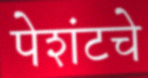
पेशंटचे